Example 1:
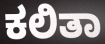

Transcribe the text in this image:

ಕಲಿತಾ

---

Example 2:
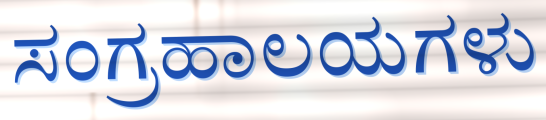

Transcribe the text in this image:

ಸಂಗ್ರಹಾಲಯಗಳು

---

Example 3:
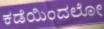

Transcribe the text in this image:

ಕಡೆಯಿಂದಲೋ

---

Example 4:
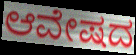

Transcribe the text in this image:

ಆವೇಷದ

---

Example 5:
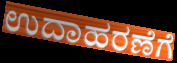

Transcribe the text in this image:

ಉದಾಹರಣೆಗೆ